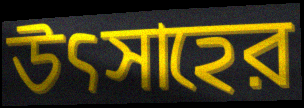
উৎসাহের